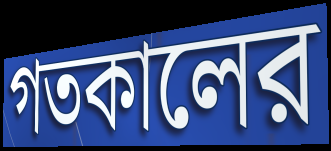
গতকালের